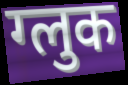
ग्लुक